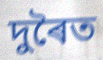
দুৰৈত